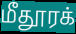
மீதூரக்